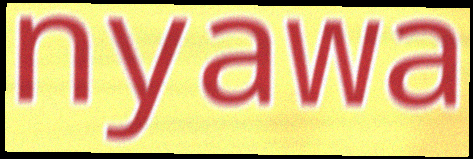
nyawa